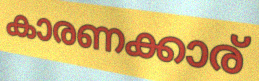
കാരണക്കാര്